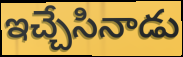
ఇచ్చేసినాడు